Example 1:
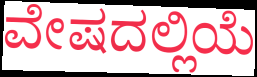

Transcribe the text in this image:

ವೇಷದಲ್ಲಿಯೆ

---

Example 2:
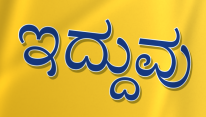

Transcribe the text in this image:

ಇದ್ದುವು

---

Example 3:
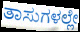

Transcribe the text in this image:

ತಾಸುಗಳಲ್ಲೇ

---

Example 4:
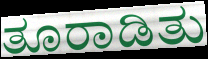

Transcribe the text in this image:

ತೂರಾಡಿತು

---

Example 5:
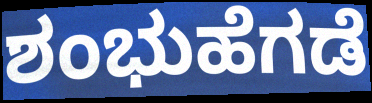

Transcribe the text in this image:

ಶಂಭುಹೆಗಡೆ